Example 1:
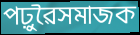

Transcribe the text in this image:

পঢ়ুৱৈসমাজক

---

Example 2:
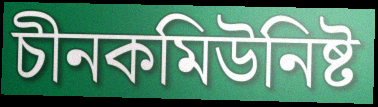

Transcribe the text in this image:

চীনকমিউনিষ্ট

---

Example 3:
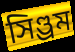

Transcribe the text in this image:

সিণ্ড্ৰম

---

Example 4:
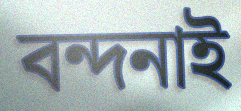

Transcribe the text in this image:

বন্দনাই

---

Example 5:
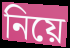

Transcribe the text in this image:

নিয়ে